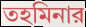
তহমিনার